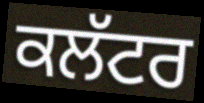
ਕਲੱਟਰ